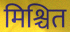
मिश्चित